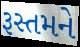
રૂસ્તમને